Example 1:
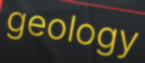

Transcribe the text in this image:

geology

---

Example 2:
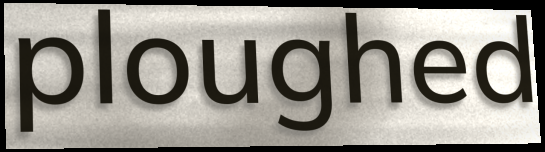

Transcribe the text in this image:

ploughed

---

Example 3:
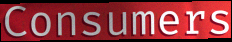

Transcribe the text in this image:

Consumers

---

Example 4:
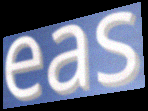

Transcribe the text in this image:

eas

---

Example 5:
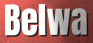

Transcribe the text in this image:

Belwa